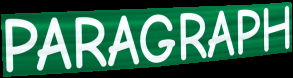
PARAGRAPH